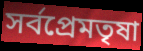
সর্বপ্রেমতৃষা